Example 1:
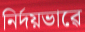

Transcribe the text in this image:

নিৰ্দয়ভাৱে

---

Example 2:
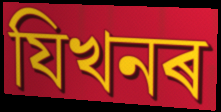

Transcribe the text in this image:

যিখনৰ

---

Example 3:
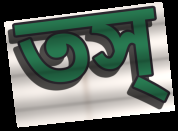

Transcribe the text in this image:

তস্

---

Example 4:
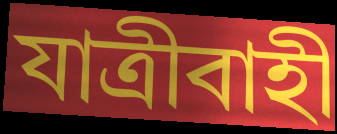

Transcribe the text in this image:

যাত্ৰীবাহী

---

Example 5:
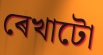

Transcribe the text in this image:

ৰেখাটো